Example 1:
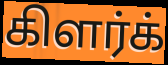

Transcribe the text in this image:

கிளர்க்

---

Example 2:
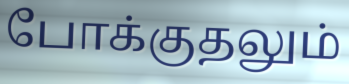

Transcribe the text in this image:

போக்குதலும்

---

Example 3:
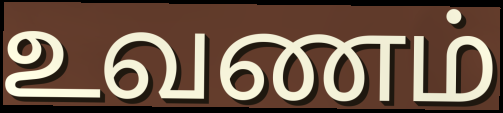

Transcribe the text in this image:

உவணம்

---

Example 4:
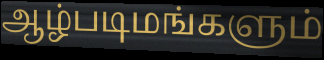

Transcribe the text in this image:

ஆழ்படிமங்களும்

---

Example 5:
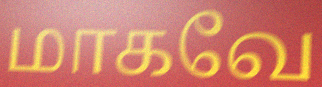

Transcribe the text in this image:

மாகவே